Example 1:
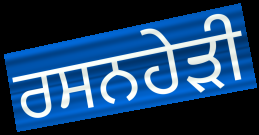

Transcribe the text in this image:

ਰਸਨਹੇੜੀ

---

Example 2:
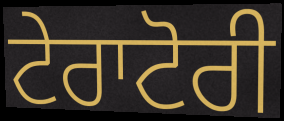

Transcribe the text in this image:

ਟੇਰਾਟੋਰੀ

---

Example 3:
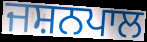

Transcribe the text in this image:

ਜਸ਼ਨਪਾਲ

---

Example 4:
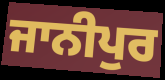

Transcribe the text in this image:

ਜਾਨੀਪੁਰ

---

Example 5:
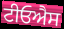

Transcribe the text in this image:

ਟੀਓਐਸ